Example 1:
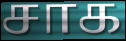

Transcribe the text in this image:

சாக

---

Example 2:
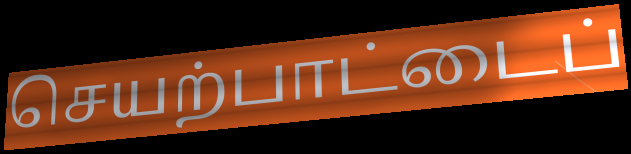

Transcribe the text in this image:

செயற்பாட்டைப்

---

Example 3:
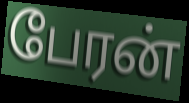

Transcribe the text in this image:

பேரன்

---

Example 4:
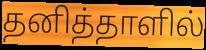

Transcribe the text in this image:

தனித்தாளில்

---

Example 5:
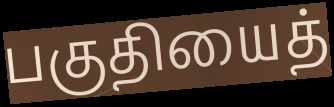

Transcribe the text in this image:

பகுதியைத்